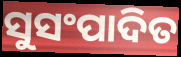
ସୁସଂପାଦିତ